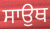
ਸਾਉਥ